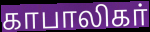
காபாலிகர்